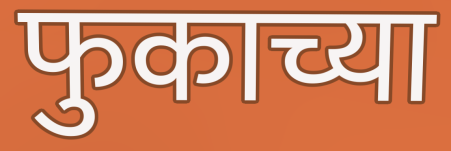
फुकाच्या